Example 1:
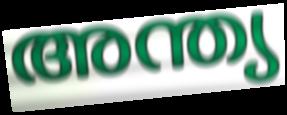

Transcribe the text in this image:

അന്ത്യ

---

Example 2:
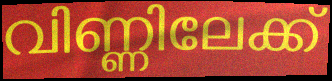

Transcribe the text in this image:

വിണ്ണിലേക്ക്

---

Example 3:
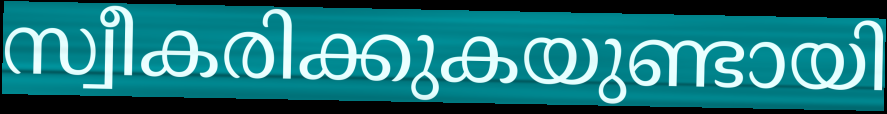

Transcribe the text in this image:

സ്വീകരിക്കുകയുണ്ടായി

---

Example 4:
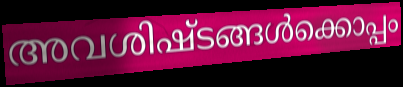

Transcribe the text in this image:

അവശിഷ്ടങ്ങൾക്കൊപ്പം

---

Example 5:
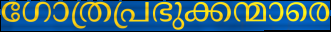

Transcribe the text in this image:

ഗോത്രപ്രഭുക്കന്മാരെ